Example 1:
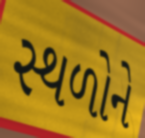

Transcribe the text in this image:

સ્થળોને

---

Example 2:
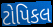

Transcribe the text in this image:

ટોપિકલ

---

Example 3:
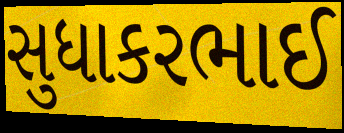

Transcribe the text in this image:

સુધાકરભાઈ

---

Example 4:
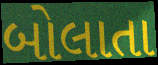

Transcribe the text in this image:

બોલાતા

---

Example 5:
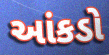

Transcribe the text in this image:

આંકડો